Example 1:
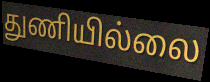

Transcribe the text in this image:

துணியில்லை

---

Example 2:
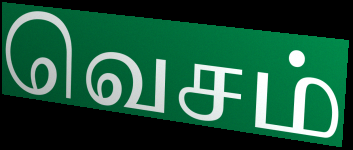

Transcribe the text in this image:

வெசம்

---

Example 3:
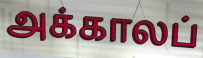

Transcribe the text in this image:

அக்காலப்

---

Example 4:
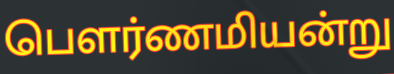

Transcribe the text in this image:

பெளர்ணமியன்று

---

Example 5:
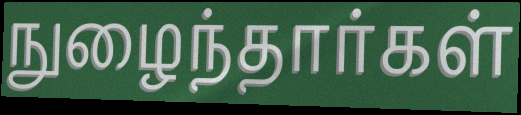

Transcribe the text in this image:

நுழைந்தார்கள்